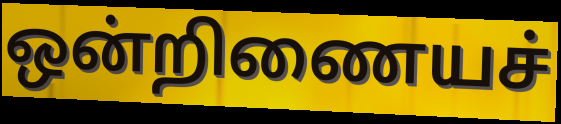
ஒன்றிணையச்